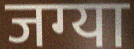
जग्या